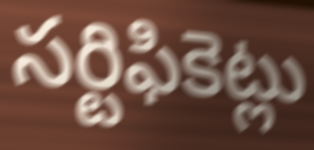
సర్టిఫికెట్లు